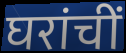
घरांचीं